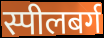
स्पीलबर्ग